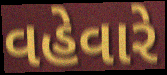
વહેવારે